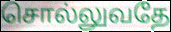
சொல்லுவதே